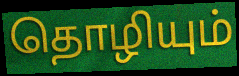
தொழியும்